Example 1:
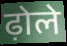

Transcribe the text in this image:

ढ़ोले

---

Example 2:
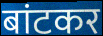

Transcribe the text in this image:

बांटकर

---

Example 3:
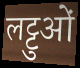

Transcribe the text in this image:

लट्टुओं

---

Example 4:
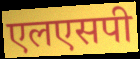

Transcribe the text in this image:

एलएसपी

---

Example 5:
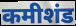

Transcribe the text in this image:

कमीशंड